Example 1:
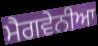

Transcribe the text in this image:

ਮੈਗਵੇਨੀਆ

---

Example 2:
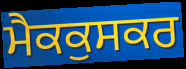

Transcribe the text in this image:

ਮੈਕਕੁਸਕਰ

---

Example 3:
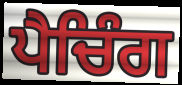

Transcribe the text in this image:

ਪੈਚਿੰਗ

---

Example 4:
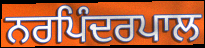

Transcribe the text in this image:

ਨਰਪਿੰਦਰਪਾਲ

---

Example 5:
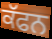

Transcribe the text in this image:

ਕੱਫਨ